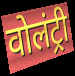
वोलंट्री